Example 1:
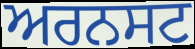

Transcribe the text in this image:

ਅਰਨਸਟ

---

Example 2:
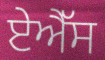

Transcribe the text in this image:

ਏਐੱਸ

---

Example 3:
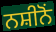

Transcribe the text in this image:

ਨਸ਼ੀਨੋਂ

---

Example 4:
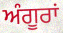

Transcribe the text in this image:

ਅੰਗੂਰਾਂ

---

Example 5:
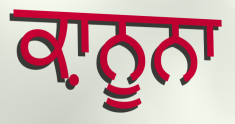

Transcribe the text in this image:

ਕ਼ਾਨੂਨਾ